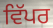
ਵਿੱਪਰ